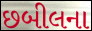
છબીલના